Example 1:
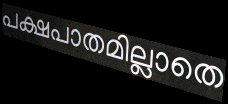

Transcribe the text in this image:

പക്ഷപാതമില്ലാതെ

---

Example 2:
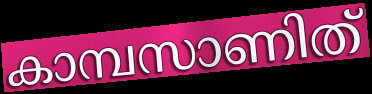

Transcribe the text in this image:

കാമ്പസാണിത്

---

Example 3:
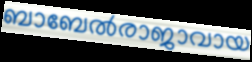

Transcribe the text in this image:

ബാബേൽരാജാവായ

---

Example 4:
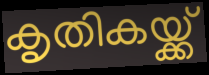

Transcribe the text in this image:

കൃതികയ്ക്ക്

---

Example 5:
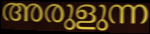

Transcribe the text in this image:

അരുളുന്ന